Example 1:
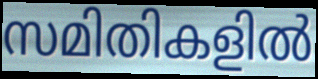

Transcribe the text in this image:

സമിതികളിൽ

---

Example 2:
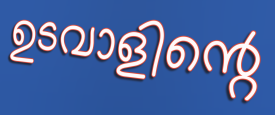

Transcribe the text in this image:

ഉടവാളിന്റെ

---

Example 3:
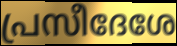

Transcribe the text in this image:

പ്രസീദേശേ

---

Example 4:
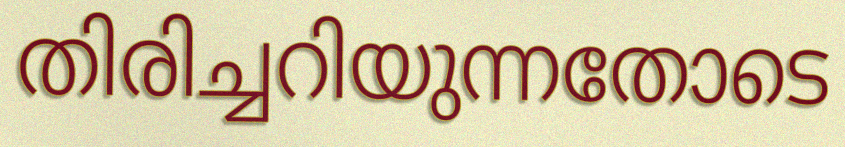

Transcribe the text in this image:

തിരിച്ചറിയുന്നതോടെ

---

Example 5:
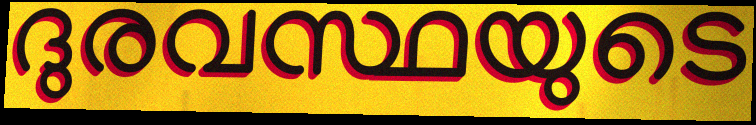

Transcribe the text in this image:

ദുരവസ്ഥയുടെ